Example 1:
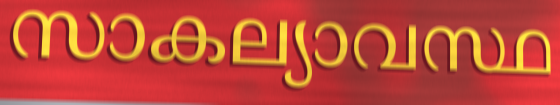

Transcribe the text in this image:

സാകല്യാവസ്ഥ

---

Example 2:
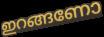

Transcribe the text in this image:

ഇറങ്ങണോ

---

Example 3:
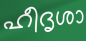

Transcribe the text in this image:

ഹീദൃശാ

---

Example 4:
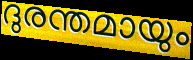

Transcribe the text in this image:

ദുരന്തമായും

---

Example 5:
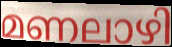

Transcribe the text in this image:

മണലാഴി